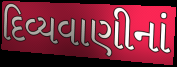
દિવ્યવાણીનાં